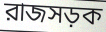
রাজসড়ক